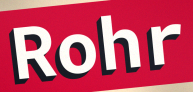
Rohr